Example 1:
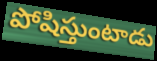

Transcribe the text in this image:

పోషిస్తుంటాడు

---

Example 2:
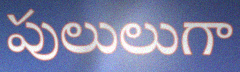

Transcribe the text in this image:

పులులుగా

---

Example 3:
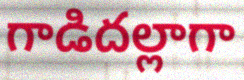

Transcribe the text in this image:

గాడిదల్లాగా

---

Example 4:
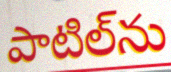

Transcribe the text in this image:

పాటిల్‌ను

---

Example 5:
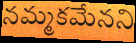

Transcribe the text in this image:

నమ్మకమేనని